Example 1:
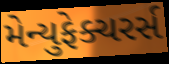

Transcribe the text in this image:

મેન્યુફેક્ચરર્સ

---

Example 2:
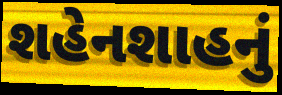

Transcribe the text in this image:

શહેનશાહનું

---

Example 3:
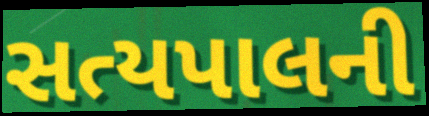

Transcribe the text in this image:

સત્યપાલની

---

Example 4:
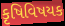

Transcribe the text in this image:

કૃષિવિષયક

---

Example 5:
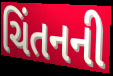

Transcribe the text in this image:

ચિંતનની